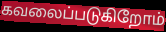
கவலைப்படுகிறோம்